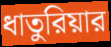
ধাতুরিয়ার